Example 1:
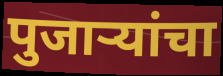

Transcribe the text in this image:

पुजाऱ्यांचा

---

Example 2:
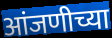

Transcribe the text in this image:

आंजणीच्या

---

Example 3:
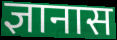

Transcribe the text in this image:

ज्ञानास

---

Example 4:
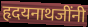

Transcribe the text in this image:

हृदयनाथजींनी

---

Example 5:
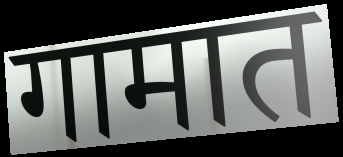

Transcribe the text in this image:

गामात